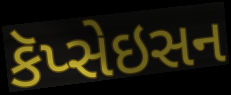
કૅપ્સેઇસન